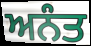
ਅਨੰਤ